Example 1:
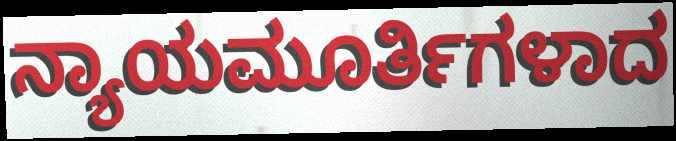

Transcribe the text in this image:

ನ್ಯಾಯಮೂರ್ತಿಗಳಾದ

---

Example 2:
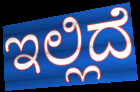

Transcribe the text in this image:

ಇಲ್ಲಿದೆ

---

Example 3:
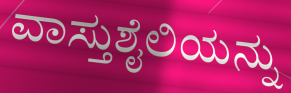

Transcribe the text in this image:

ವಾಸ್ತುಶೈಲಿಯನ್ನು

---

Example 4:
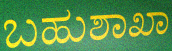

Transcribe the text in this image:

ಬಹುಶಾಖಾ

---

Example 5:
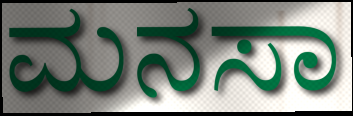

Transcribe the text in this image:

ಮನಸಾ